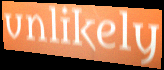
unlikely